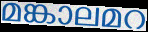
മങ്കാലമറ